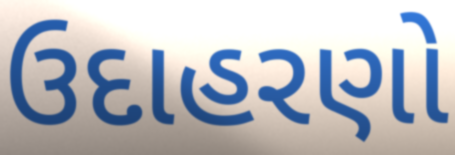
ઉદાહરણો